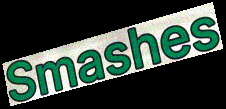
Smashes